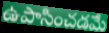
ఉపాసించడమే